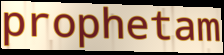
prophetam